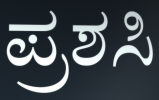
ಪ್ರಶಸಿ